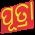
ପୂତ୍ରା